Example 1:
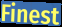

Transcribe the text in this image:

Finest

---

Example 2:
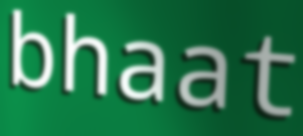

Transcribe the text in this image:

bhaat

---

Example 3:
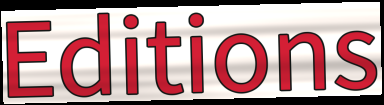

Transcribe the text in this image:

Editions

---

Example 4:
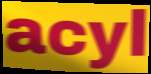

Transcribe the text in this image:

acyl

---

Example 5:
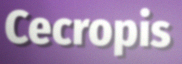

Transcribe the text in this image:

Cecropis